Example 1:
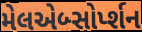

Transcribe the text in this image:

મેલએબ્સોર્પ્શન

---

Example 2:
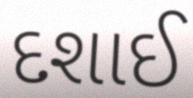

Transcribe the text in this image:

દશાઈ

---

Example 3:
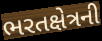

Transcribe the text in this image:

ભરતક્ષેત્રની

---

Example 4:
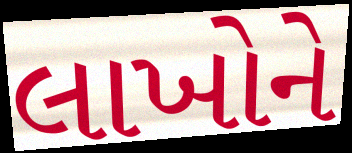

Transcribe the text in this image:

લાખોને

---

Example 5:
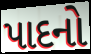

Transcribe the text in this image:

પાદનો